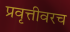
प्रवृत्तीवरच